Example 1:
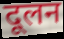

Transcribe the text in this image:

दूलन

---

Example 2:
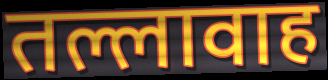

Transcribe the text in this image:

तल्लावाह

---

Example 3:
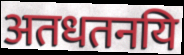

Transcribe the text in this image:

अतधतनयि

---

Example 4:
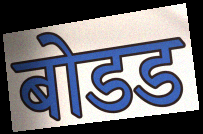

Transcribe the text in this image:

बोडड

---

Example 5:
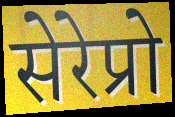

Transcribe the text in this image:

सेरेप्रो